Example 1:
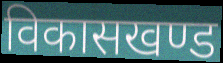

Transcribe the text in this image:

विकासखण्ड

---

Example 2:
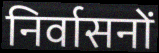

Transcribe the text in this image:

निर्वासनों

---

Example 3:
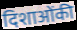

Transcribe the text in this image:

दिशाओंकी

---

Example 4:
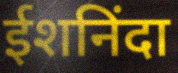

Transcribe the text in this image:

ईशनिंदा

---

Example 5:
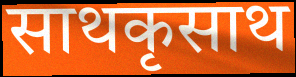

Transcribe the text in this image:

साथकृसाथ